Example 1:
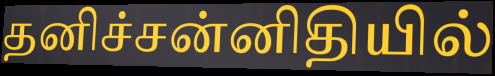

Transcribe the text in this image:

தனிச்சன்னிதியில்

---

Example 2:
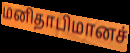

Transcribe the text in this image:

மனிதாபிமானச்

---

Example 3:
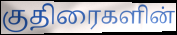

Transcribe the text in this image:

குதிரைகளின்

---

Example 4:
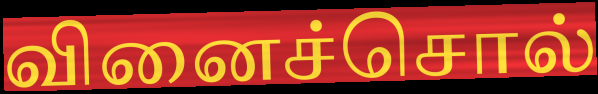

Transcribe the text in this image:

வினைச்சொல்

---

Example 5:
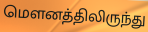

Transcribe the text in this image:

மௌனத்திலிருந்து